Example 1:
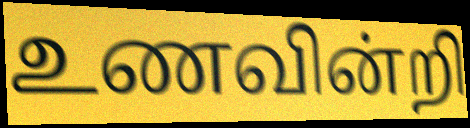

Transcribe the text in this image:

உணவின்றி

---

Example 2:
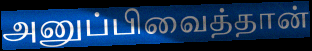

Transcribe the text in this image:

அனுப்பிவைத்தான்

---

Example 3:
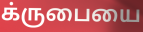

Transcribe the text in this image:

க்ருபையை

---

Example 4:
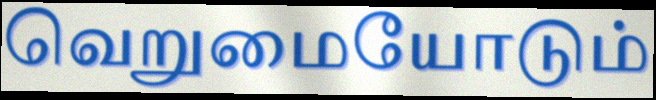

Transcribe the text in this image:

வெறுமையோடும்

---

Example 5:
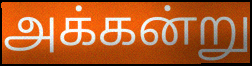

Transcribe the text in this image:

அக்கன்று